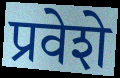
प्रवेशे